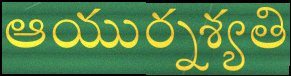
ఆయుర్నశ్యతి